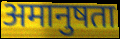
अमानुषता